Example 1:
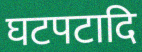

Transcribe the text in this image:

घटपटादि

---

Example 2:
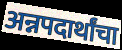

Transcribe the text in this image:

अन्नपदार्थांचा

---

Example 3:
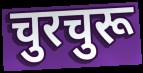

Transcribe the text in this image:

चुरचुरू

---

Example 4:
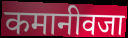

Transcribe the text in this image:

कमानीवजा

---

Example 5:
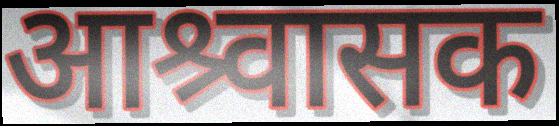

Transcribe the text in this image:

आश्र्वासक